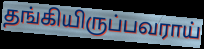
தங்கியிருப்பவராய்